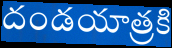
దండయాత్రకి